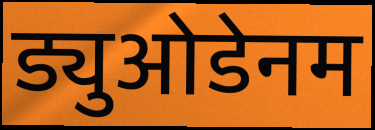
ड्युओडेनम